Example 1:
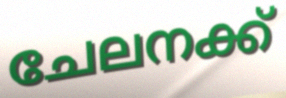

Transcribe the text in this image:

ചേലനക്ക്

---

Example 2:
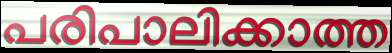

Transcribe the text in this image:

പരിപാലിക്കാത്ത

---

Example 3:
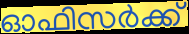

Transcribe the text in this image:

ഓഫിസർക്ക്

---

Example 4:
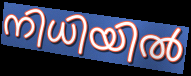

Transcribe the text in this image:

നിധിയിൽ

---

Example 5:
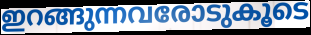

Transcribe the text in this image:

ഇറങ്ങുന്നവരോടുകൂടെ